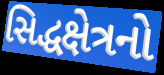
સિદ્ધક્ષેત્રનો